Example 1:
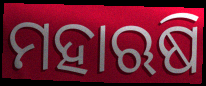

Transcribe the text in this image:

ମହାଋଷି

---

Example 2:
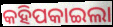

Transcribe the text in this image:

କହିପକାଇଲା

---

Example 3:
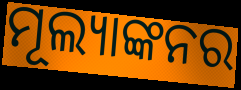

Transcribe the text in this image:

ମୂଲ୍ୟାଙ୍କନର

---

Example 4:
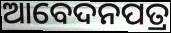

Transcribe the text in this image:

ଆବେଦନପତ୍ର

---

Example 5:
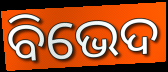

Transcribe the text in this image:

ବିଭେଦ